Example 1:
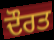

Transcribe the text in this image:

ਦੌਰਤ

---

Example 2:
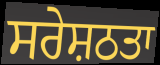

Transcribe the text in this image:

ਸਰੇਸ਼ਠਤਾ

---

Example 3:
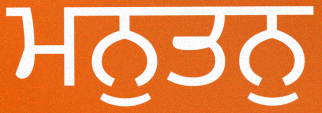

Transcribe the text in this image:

ਮਨੁਤਨੁ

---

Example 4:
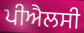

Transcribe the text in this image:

ਪੀਐਲਸੀ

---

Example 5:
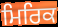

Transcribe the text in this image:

ਮਿਰਿਕ